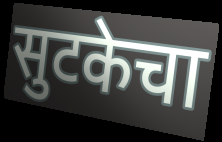
सुटकेचा